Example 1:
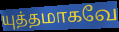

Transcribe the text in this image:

யுத்தமாகவே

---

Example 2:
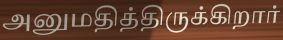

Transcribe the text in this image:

அனுமதித்திருக்கிறார்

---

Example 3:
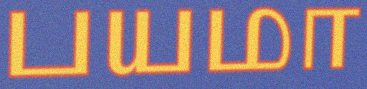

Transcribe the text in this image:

பயமா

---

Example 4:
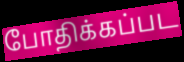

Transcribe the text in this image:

போதிக்கப்பட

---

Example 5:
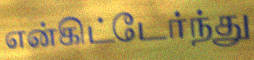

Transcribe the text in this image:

என்கிட்டேர்ந்து